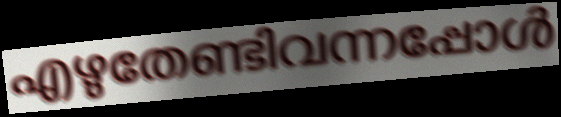
എഴുതേണ്ടിവന്നപ്പോൾ